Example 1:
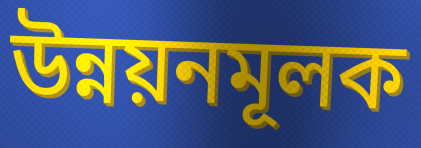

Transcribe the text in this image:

উন্নয়নমূলক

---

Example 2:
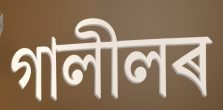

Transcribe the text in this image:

গালীলৰ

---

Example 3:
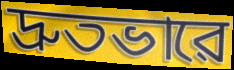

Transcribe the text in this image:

দ্ৰুতভাৱে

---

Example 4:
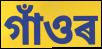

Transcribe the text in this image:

গাঁওৰ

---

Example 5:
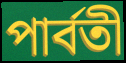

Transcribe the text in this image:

পাৰ্বতী